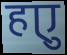
हएु